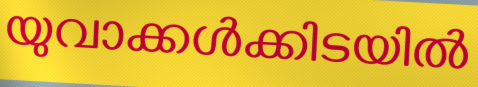
യുവാക്കൾക്കിടയിൽ